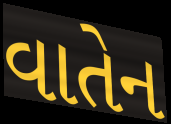
વાતેન